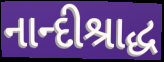
નાન્દીશ્રાદ્ધ